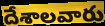
దేశాలవారు